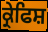
ਕ੍ਰੇਫਿਸ਼